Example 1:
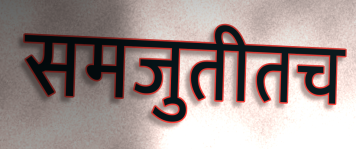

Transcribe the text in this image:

समजुतीतच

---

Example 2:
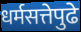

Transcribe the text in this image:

धर्मसत्तेपुढे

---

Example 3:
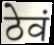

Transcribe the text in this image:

ठेवं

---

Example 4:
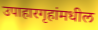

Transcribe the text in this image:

उपाहारगृहांमधील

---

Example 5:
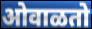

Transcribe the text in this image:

ओवाळतो